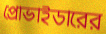
প্রোভাইডারের